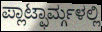
ಪ್ಲಾಟ್ಫಾರ್ಮ್ಗಳಲ್ಲಿ